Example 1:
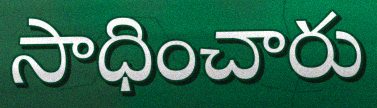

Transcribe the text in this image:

సాధించారు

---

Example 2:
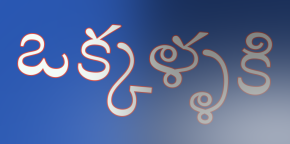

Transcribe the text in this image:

ఒక్కళ్ళకి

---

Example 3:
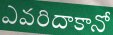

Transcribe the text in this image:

ఎవరిదాకానో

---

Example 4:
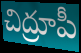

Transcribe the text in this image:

చిద్రూపీ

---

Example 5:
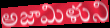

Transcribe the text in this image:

అజామిళుని